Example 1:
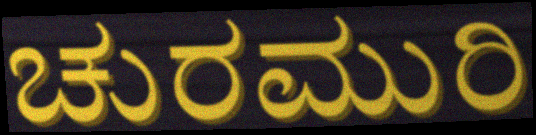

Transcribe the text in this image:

ಚುರಮುರಿ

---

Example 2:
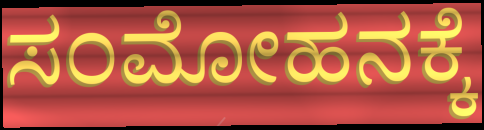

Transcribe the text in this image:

ಸಂಮೋಹನಕ್ಕೆ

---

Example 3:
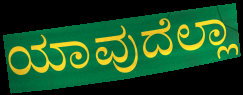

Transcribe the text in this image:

ಯಾವುದೆಲ್ಲಾ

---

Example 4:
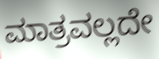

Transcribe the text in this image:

ಮಾತ್ರವಲ್ಲದೇ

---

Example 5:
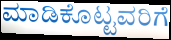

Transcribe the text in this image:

ಮಾಡಿಕೊಟ್ಟವರಿಗೆ